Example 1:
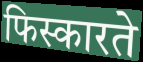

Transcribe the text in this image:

फिस्कारते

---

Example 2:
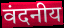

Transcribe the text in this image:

वंदनीय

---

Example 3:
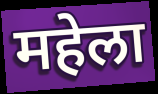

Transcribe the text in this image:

महेला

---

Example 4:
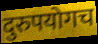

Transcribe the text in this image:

दुरुपयोगच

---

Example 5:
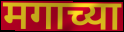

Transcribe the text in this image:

मगाच्या